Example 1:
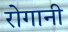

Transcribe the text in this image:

रोगानी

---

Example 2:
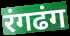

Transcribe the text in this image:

रंगढंग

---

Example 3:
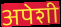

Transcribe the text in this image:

अपेशी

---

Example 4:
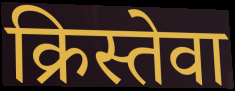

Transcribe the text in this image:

क्रिस्तेवा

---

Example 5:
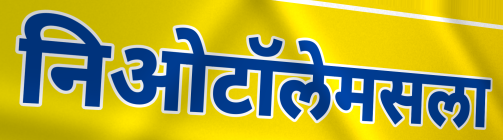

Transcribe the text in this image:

निओटॉलेमसला